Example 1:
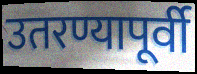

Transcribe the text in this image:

उतरण्यापूर्वी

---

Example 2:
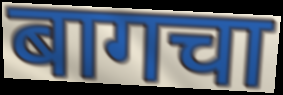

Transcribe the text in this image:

बागचा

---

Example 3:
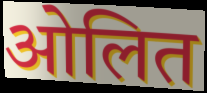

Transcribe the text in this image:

ओलित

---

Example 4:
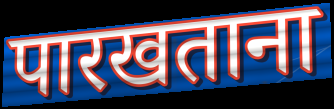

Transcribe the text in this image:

पारखताना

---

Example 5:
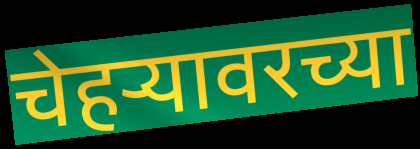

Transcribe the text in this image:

चेहर्‍यावरच्या